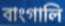
বাংগালি